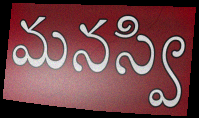
మనస్వి